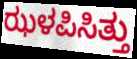
ಝಳಪಿಸಿತ್ತು